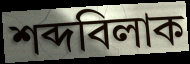
শব্দবিলাক